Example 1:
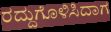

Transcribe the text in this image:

ರದ್ದುಗೊಳಿಸಿದಾಗ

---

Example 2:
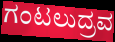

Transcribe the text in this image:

ಗಂಟಲುದ್ರವ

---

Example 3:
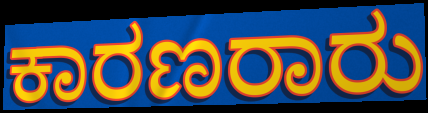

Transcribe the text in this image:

ಕಾರಣರಾರು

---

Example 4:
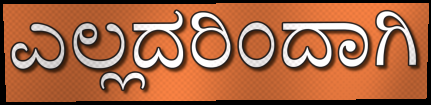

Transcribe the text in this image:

ಎಲ್ಲದರಿಂದಾಗಿ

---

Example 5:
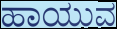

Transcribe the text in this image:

ಹಾಯುವ